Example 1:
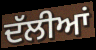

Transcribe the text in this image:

ਦੱਲੀਆਂ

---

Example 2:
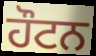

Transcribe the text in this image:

ਹੌਟਨ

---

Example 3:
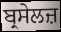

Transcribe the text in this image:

ਬ੍ਰਸੇਲਜ਼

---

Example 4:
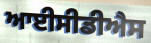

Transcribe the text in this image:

ਆਈਸੀਡੀਐਸ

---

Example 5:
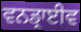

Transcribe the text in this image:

ਵਨਡ੍ਰਾਈਵ